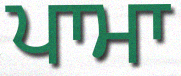
ਪਾਮਾ